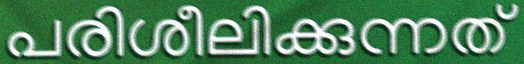
പരിശീലിക്കുന്നത്